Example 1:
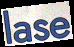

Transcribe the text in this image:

lase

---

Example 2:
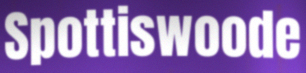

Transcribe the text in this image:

Spottiswoode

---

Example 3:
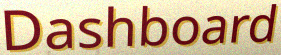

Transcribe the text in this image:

Dashboard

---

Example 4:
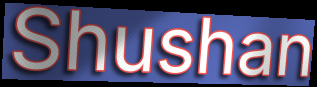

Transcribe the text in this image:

Shushan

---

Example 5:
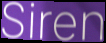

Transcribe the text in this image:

Siren